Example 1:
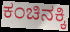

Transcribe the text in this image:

ಕಂಚಿನಕ್ಕಿ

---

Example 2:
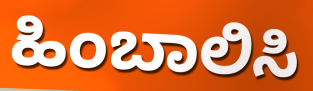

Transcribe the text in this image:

ಹಿಂಬಾಲಿಸಿ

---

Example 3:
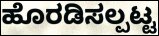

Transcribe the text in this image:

ಹೊರಡಿಸಲ್ಪಟ್ಟ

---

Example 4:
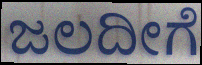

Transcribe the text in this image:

ಜಲದೀಗೆ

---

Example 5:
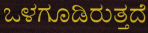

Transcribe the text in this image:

ಒಳಗೂಡಿರುತ್ತದೆ